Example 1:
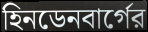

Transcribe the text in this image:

হিনডেনবার্গের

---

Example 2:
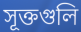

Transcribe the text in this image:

সূক্তগুলি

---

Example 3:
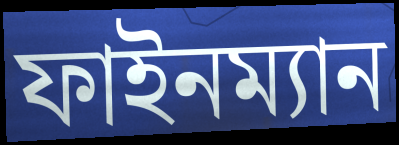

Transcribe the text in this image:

ফাইনম্যান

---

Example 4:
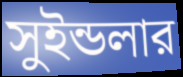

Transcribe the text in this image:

সুইন্ডলার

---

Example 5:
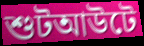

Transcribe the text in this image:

শুটআউটে